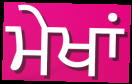
ਮੇਖਾਂ